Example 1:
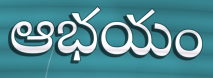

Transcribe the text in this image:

ఆభయం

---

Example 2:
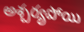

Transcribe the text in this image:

అశ్చర్యపోయి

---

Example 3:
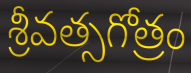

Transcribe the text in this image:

శ్రీవత్సగోత్రం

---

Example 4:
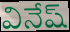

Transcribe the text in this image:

వినేష్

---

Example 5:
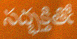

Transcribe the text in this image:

సద్భక్తితోఁ